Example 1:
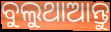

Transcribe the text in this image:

ବୁଲୁଥାଆନ୍ତୁ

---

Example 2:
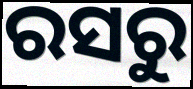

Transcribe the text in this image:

ରସରୁ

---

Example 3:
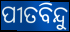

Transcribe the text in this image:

ପୀତବିନ୍ଦୁ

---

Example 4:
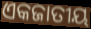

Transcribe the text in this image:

ଏକଜାତୀୟ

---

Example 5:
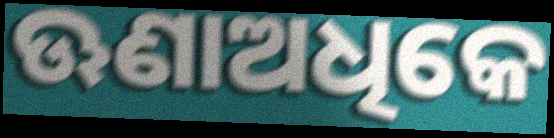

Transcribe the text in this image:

ଊଣାଅଧିକେ